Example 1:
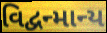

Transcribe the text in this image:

વિદ્વન્માન્ય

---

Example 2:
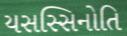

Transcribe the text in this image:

યસસ્સિનોતિ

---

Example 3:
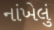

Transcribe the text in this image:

નાંખેલું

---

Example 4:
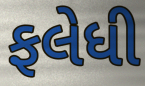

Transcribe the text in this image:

ફલેધી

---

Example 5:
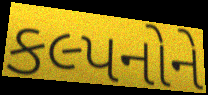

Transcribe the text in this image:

કલ્પનોને